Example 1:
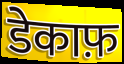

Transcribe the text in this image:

डेकाफ़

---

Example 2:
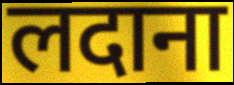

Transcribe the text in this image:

लदाना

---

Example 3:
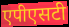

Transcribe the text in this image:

एपीएसटी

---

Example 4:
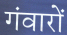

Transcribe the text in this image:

गंवारों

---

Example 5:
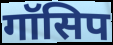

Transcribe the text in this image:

गॉसिप